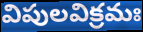
విపులవిక్రమః